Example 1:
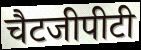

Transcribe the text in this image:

चैटजीपीटी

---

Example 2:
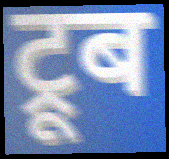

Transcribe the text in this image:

ट्रूब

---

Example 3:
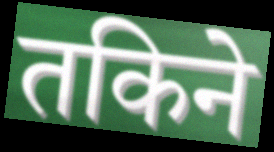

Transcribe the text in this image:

तकिने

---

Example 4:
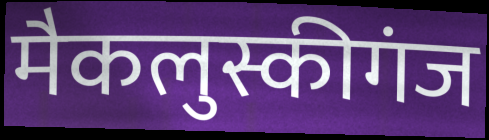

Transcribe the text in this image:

मैकलुस्कीगंज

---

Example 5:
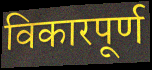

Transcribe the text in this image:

विकारपूर्ण